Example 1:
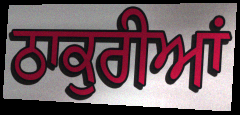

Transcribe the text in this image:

ਠਾਕੁਰੀਆਂ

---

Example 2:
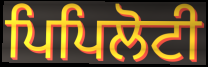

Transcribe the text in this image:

ਪਿਪਿਲੋਟੀ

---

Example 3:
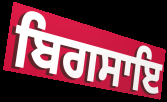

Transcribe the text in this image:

ਬਿਗਸਾਇ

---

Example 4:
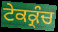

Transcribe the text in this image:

ਟੇਕਕ੍ਰੰਚ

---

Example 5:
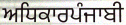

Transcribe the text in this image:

ਅਧਿਕਾਰਪੰਜਾਬੀ